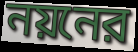
নয়নের